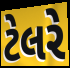
ટેલરે